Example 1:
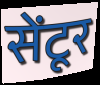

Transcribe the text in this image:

सेंटूर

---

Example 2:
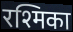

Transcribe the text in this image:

रश्मिका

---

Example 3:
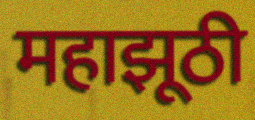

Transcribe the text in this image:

महाझूठी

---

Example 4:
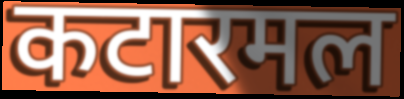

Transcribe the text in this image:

कटारमल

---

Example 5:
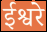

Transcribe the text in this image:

ईश्वरे